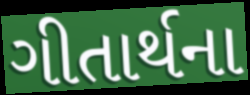
ગીતાર્થના